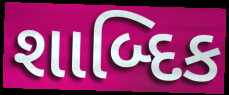
શાબ્દિક